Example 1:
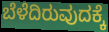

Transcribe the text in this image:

ಬೆಳೆದಿರುವುದಕ್ಕೆ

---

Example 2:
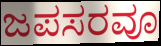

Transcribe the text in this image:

ಜಪಸರವೂ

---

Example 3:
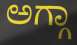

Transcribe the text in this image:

ಅಗ್ಗಾ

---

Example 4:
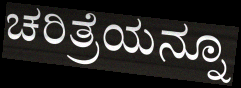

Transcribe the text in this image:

ಚರಿತ್ರೆಯನ್ನೂ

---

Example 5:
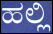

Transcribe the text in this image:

ಹಲ್ಲಿ